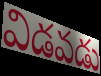
విడవడు